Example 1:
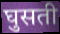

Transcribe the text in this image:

घुसती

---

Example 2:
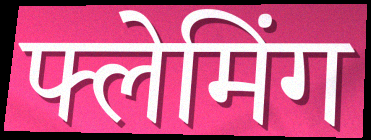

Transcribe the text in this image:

फ्लेमिंग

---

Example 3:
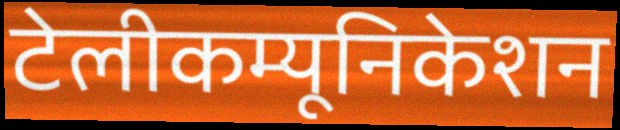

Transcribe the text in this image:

टेलीकम्‍यूनिकेशन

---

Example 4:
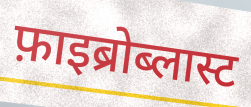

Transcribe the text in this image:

फ़ाइब्रोब्लास्ट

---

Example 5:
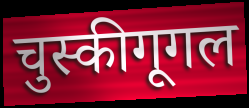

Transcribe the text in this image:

चुस्कीगूगल